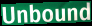
Unbound